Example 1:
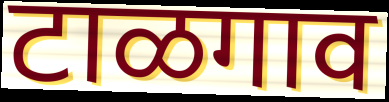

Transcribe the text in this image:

टाळगाव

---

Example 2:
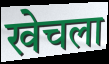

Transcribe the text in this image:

खेचला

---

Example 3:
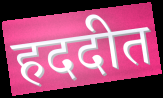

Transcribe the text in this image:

हददीत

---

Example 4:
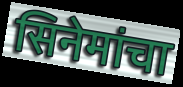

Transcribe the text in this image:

सिनेमांचा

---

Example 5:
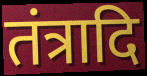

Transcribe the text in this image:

तंत्रादि